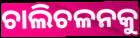
ଚାଲିଚଳନକୁ